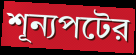
শূন্যপটের